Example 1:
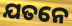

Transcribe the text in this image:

ଯତନେ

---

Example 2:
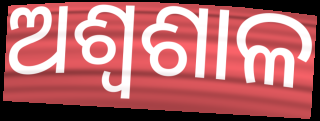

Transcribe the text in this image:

ଅଶ୍ୱଶାଳ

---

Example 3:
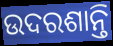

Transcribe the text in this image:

ଉଦରଶାନ୍ତି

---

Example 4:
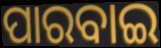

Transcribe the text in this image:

ପାରବାଇ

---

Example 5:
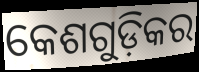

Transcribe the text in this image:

କେଶଗୁଡ଼ିକର